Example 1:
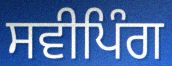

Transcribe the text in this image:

ਸਵੀਪਿੰਗ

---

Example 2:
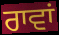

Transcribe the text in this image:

ਰਾਵਾਂ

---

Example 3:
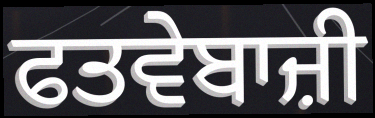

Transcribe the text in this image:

ਫਤਵੇਬਾਜ਼ੀ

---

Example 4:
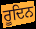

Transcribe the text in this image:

ਰੂਦਿਨ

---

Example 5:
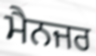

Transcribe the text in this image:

ਮੈਨਜਰ